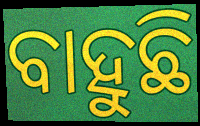
ବାହୁଛି